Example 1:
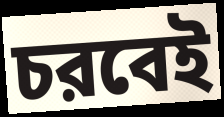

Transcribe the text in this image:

চরবেই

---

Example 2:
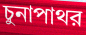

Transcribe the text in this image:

চুনাপাথর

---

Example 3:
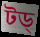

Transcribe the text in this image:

টড্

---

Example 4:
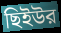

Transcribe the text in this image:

ছিইউর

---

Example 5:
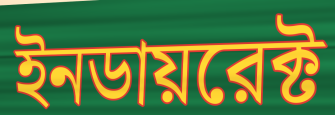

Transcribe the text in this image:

ইনডায়রেক্ট